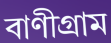
বাণীগ্রাম